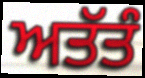
ਅਤੱਤੰ